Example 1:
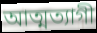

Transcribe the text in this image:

আত্মত্যাগী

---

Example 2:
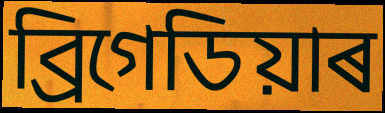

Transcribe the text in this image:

ব্ৰিগেডিয়াৰ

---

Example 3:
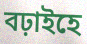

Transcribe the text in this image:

বঢ়াইহে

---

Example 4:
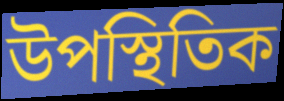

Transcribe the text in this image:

উপস্থিতিক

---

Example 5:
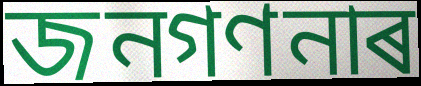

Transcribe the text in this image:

জনগণনাৰ